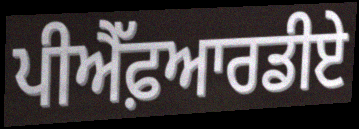
ਪੀਐੱਫ਼ਆਰਡੀਏ